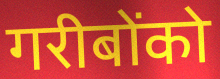
गरीबोंको